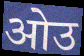
ओउ